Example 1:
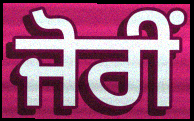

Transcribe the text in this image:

ਜੋਰੀਂ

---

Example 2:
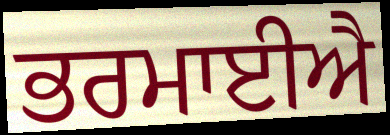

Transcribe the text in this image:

ਭਰਮਾਈਐ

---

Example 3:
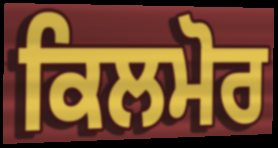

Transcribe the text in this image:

ਕਿਲਮੋਰ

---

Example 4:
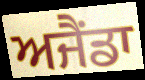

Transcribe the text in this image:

ਅਜੈਂਡਾ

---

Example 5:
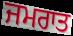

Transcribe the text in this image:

ਜਮਰਾਤ